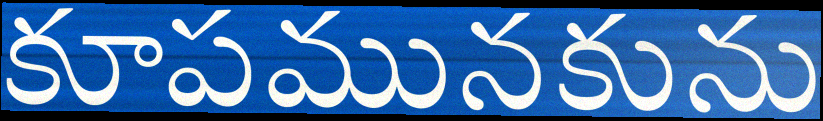
కూపమునకును